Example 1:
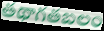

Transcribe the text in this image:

తథాగతబలం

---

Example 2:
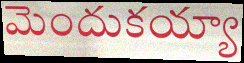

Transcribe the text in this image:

మెందుకయ్యా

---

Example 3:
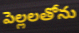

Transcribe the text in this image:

పెల్లలతోను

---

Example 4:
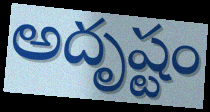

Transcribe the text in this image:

అదృష్టం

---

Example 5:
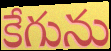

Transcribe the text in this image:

కేగును